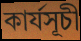
কাৰ্যসূচী